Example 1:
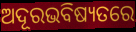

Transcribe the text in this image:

ଅଦୂରଭବିଷ୍ୟତରେ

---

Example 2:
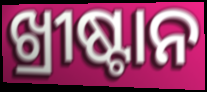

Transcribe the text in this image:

ଖ୍ରୀଷ୍ଟାନ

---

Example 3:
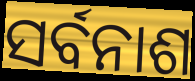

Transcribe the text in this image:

ସର୍ବନାଶ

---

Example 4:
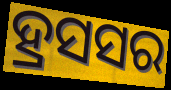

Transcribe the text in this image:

ହ୍ରସସର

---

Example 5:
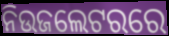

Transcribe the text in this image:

ନିଉଜଲେଟରରେ